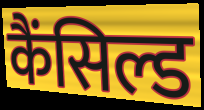
कैंसिल्ड